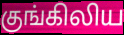
குங்கிலிய